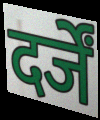
दर्जें